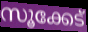
സൂക്കേട്